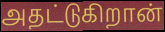
அதட்டுகிறான்